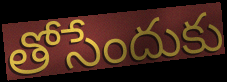
తోసేందుకు